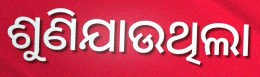
ଶୁଣିଯାଉଥିଲା